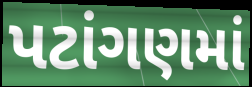
પટાંગણમાં